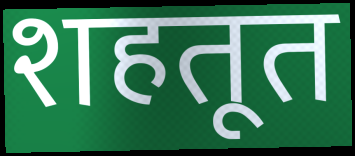
शहतूत